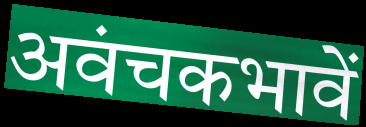
अवंचकभावें